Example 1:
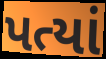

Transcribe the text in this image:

પત્યાં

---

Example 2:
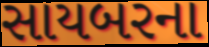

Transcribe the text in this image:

સાયબરના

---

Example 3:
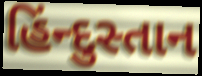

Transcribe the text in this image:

હિંન્દુસ્તાન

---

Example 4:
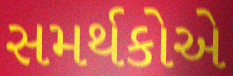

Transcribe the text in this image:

સમર્થકોએ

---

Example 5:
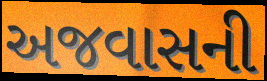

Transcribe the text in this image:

અજવાસની